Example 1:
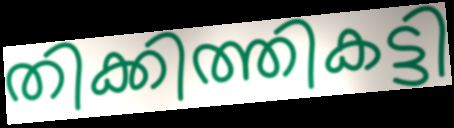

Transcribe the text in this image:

തിക്കിത്തികട്ടി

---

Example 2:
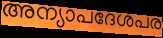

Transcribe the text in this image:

അന്യാപദേശപര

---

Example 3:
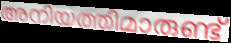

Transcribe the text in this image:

അനിയത്തിമാരുണ്ട്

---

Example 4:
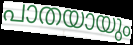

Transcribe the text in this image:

പാതയായും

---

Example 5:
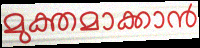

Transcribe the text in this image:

മുക്തമാക്കാൻ